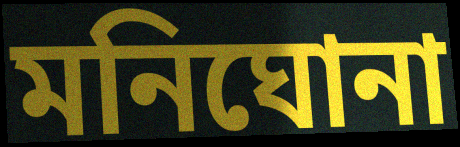
মনিঘোনা